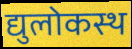
द्युलोकस्थ